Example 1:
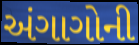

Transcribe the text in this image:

અંગાગોની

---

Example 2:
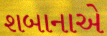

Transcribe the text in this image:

શબાનાએ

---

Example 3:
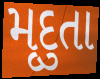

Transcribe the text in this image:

મૃદુતા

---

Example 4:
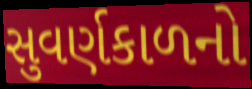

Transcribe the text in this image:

સુવર્ણકાળનો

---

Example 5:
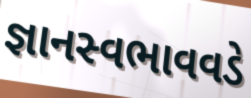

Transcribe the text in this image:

જ્ઞાનસ્વભાવવડે